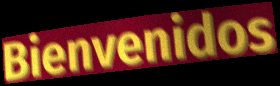
Bienvenidos